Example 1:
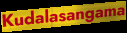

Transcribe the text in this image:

Kudalasangama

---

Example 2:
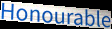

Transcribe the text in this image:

Honourable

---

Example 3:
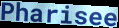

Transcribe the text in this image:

Pharisee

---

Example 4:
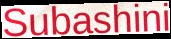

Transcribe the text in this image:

Subashini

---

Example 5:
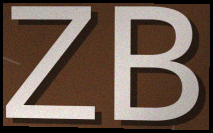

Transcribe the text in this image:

ZB